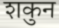
शकुन